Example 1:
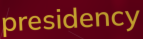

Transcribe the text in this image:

presidency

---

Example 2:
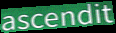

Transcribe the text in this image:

ascendit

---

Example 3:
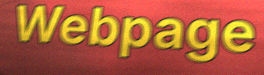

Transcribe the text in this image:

Webpage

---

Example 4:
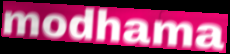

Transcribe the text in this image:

modhama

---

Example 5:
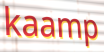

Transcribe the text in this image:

kaamp